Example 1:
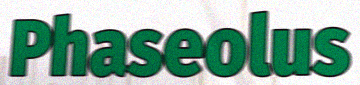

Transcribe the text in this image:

Phaseolus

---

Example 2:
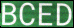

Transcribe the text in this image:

BCED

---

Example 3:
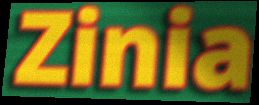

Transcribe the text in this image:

Zinia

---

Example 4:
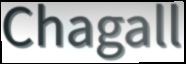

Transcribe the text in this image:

Chagall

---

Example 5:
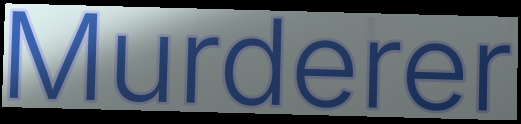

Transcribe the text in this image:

Murderer